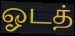
ஓடத்